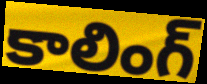
కాలింగ్